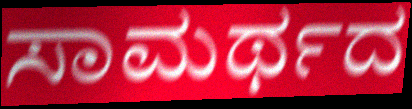
ಸಾಮರ್ಥದ